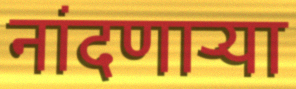
नांदणार्‍या